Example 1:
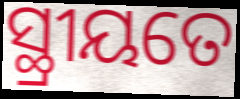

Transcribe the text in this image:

ସ୍ଥ୍ରୀୟତେ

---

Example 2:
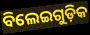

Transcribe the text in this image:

ବିଲେଇଗୁଡ଼ିକ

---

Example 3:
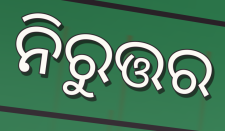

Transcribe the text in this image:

ନିରୁତ୍ତର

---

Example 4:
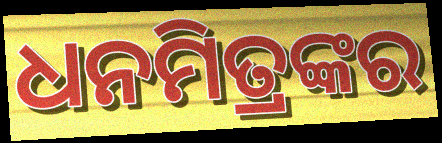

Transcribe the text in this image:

ଧନମିତ୍ରଙ୍କର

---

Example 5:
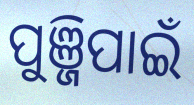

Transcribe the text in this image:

ପୁଞ୍ଜିପାଇଁ